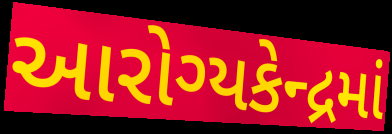
આરોગ્યકેન્દ્રમાં